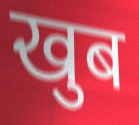
खुब